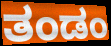
ತಂಡಂ